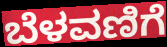
ಬೆಳವಣಿಗೆ